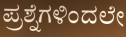
ಪ್ರಶ್ನೆಗಳಿಂದಲೇ